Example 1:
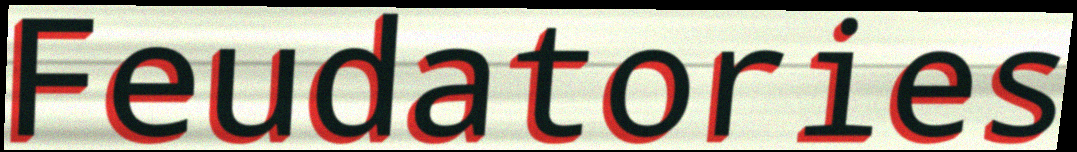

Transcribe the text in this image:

Feudatories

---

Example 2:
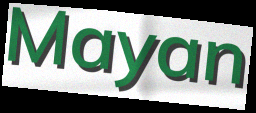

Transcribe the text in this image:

Mayan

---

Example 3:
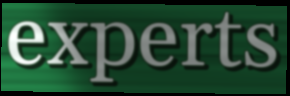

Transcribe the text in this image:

experts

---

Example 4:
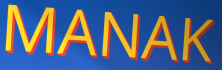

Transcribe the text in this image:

MANAK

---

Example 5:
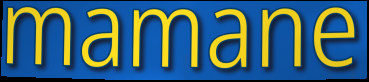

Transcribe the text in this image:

mamane